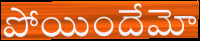
పోయిందేమో